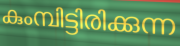
കുംമ്പിട്ടിരിക്കുന്ന